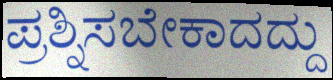
ಪ್ರಶ್ನಿಸಬೇಕಾದದ್ದು